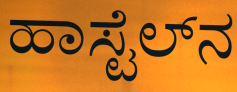
ಹಾಸ್ಟೆಲ್‌ನ